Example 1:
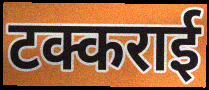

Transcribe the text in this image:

टक्कराई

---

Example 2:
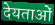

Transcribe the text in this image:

देयताओं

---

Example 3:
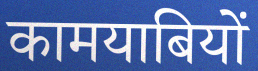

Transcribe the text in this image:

कामयाबियों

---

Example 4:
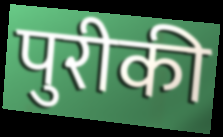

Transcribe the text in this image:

पुरीकी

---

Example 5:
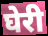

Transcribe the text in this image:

घेरी